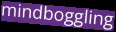
mindboggling